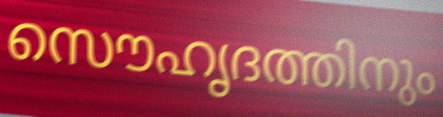
സൌഹൃദത്തിനും